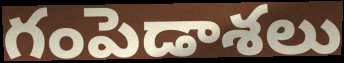
గంపెడాశలు